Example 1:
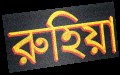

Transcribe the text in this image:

রুহিয়া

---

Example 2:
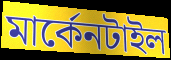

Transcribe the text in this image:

মার্কেনটাইল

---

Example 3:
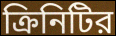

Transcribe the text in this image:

ক্রিনিটির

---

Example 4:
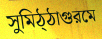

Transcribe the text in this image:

সুমিঠ্ঠাগুরমে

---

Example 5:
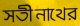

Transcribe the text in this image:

সতীনাথের